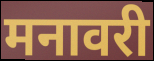
मनावरी